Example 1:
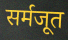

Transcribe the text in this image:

सर्मजूत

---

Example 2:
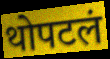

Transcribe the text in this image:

थोपटलं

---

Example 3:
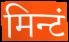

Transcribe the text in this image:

मिन्टं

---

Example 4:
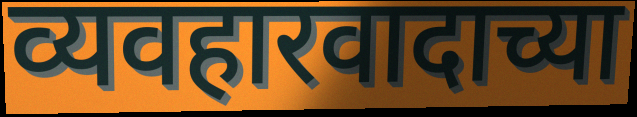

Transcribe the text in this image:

व्यवहारवादाच्या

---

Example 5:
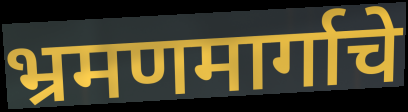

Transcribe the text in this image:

भ्रमणमार्गाचे